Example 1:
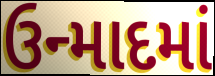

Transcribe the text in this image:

ઉન્માદમાં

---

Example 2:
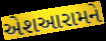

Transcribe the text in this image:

એશઆરામને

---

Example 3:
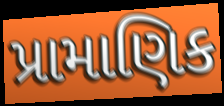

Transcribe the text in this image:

પ્રામાણિક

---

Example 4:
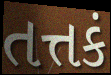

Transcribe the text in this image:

તત્તકં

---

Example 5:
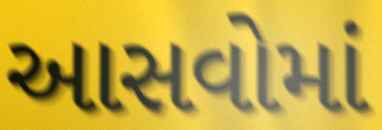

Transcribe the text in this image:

આસવોમાં